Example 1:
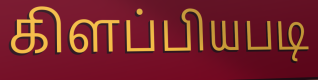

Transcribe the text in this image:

கிளப்பியபடி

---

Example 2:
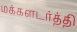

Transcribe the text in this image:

மக்களடர்த்தி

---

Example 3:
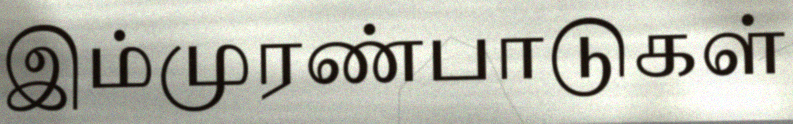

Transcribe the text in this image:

இம்முரண்பாடுகள்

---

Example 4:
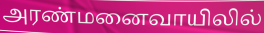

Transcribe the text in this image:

அரண்மனைவாயிலில்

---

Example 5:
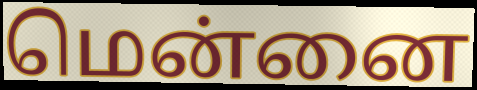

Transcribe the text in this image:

மென்னை